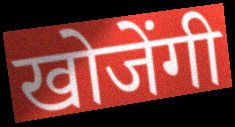
खोजेंगी